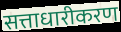
सत्ताधारीकरण